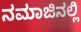
ನಮಾಜಿನಲ್ಲಿ